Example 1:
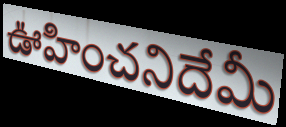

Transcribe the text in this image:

ఊహించనిదేమీ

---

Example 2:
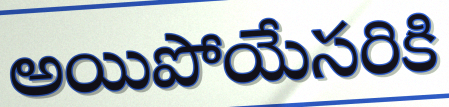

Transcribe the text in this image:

అయిపోయేసరికి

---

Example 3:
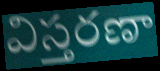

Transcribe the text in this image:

విస్తరణా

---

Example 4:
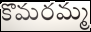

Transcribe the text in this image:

కొమరమ్మ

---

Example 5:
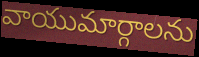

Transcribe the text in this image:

వాయుమార్గాలను